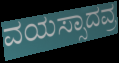
ವಯಸ್ಸಾದವ್ರ